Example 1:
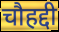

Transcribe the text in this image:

चौहद्दी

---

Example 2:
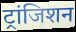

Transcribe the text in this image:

ट्रांजिशन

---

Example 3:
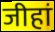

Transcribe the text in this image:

जीहां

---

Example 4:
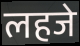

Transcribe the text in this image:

लहजे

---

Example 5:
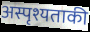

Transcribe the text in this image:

अस्पृश्यताकी